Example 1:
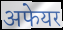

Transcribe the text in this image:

अफेयर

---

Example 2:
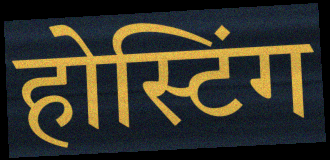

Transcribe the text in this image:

होस्टिंग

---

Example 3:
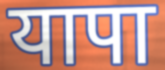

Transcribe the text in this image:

यापा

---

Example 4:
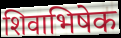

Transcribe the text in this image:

शिवाभिषेक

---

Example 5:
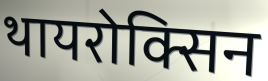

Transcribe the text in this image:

थायरोक्सिन